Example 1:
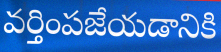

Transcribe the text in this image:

వర్తింపజేయడానికి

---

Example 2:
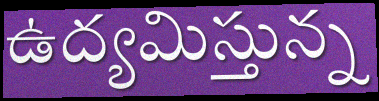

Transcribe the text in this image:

ఉద్యమిస్తున్న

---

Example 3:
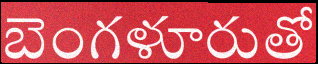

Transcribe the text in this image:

బెంగళూరుతో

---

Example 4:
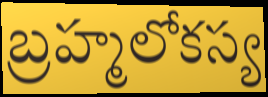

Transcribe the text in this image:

బ్రహ్మలోకస్య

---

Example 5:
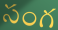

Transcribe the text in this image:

సంగ